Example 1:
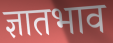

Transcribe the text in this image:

ज्ञातभाव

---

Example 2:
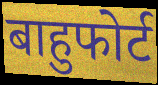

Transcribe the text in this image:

बाहुफोर्ट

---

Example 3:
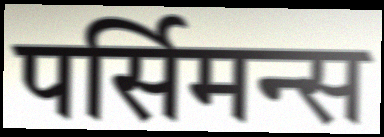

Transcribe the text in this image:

पर्सिमन्स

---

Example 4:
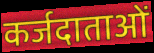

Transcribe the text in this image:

कर्जदाताओं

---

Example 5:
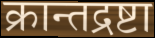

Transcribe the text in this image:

क्रान्तद्रष्टा